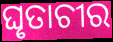
ଘୃତାଚୀର